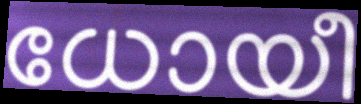
ധോയീ